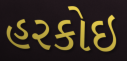
હરકોઇ